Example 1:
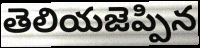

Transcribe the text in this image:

తెలియజెప్పిన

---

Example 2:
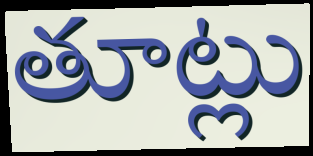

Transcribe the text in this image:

తూట్లు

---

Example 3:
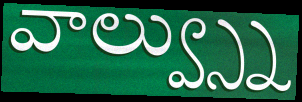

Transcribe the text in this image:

వాల్వ్స్ను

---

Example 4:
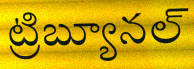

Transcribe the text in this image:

ట్రిబ్యూనల్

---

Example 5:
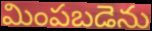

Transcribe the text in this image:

మింపబడెను